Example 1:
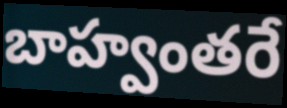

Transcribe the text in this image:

బాహ్వంతరే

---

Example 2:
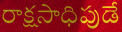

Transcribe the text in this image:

రాక్షసాధిపుడే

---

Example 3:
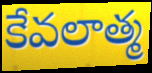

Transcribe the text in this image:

కేవలాత్మ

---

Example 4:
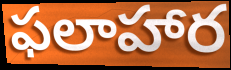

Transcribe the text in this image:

ఫలాహార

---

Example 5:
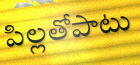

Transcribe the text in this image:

పిల్లతోపాటు